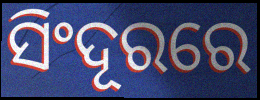
ସିଂଦୂରରେ